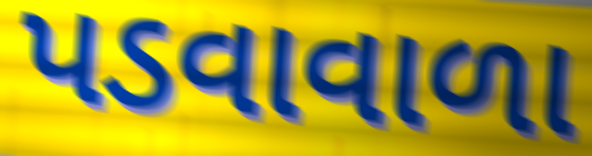
પડવાવાળા